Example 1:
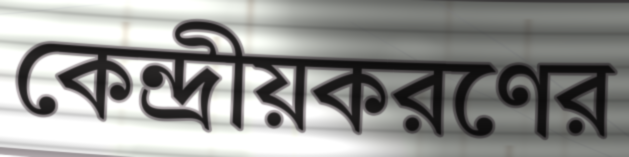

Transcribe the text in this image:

কেন্দ্রীয়করণের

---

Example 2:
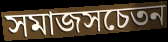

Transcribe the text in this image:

সমাজসচেতন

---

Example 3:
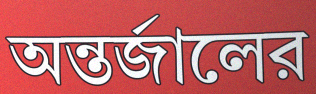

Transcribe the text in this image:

অন্তর্জালের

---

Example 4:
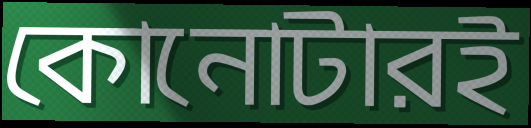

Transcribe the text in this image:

কোনোটারই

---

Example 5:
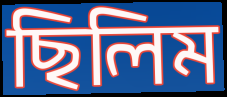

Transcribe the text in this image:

ছিলিম